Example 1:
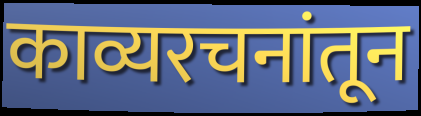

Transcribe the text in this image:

काव्यरचनांतून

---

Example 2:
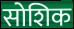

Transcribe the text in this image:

सोशिक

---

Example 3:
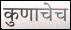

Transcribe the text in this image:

कुणाचेच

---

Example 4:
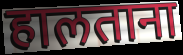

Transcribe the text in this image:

हालताना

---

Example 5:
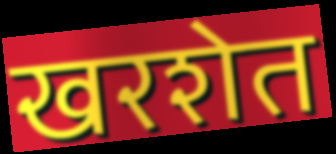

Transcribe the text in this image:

खरशेत